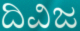
ದಿವಿಜ